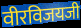
वीरविजयजी